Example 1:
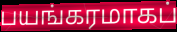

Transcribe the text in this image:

பயங்கரமாகப்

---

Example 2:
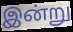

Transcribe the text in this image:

இன்று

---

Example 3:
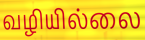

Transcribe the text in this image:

வழியில்லை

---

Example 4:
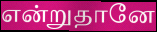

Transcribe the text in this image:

என்றுதானே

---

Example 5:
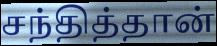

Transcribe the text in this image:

சந்தித்தான்